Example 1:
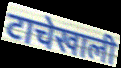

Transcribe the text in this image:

टाचेखाली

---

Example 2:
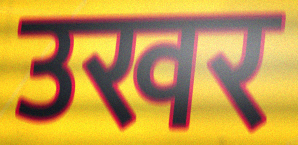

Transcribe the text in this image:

उखर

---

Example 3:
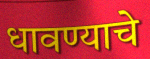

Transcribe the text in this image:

धावण्याचे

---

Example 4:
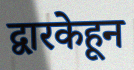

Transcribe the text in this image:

द्वारकेहून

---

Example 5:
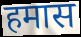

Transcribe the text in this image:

हमास